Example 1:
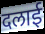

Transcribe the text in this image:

दलाई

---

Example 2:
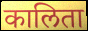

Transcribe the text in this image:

कालिता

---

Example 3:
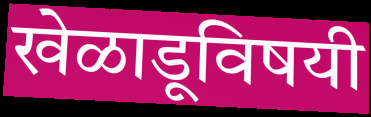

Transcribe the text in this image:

खेळाडूविषयी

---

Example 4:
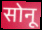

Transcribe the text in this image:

सोनू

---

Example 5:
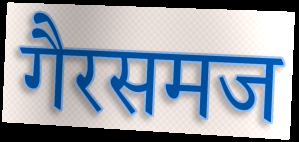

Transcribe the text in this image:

गैरसमज